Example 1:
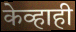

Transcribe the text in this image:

केव्हाही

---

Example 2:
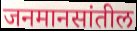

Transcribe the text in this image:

जनमानसांतील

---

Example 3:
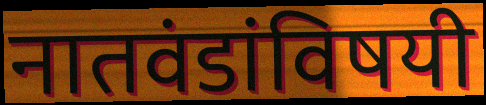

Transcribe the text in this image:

नातवंडांविषयी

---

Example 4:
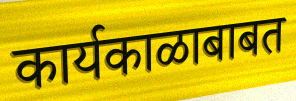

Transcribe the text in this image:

कार्यकाळाबाबत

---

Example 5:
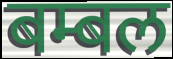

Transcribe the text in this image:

बम्बल